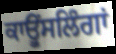
ਕਾਊਂਸਲਿੰਗਾਂ